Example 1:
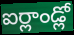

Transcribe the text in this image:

ఐర్లాండ్లో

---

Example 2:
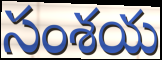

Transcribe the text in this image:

సంశయ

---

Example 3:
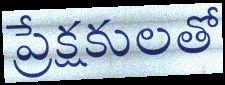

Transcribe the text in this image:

ప్రేక్షకులతో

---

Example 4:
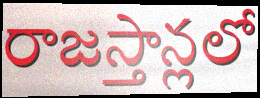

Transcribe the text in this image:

రాజస్తాన్లలో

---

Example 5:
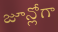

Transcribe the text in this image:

జూన్లోగా